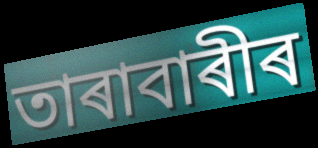
তাৰাবাৰীৰ